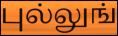
புல்லுங்